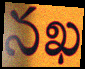
నఖ